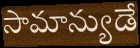
సామాన్యుడే